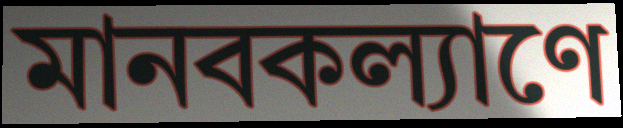
মানবকল্যাণে